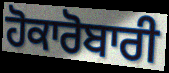
ਹੋਕਾਰੋਬਾਰੀ